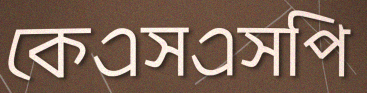
কেএসএসপি